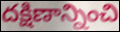
దక్షిణాన్నించి